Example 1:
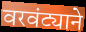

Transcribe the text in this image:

वरवंट्याने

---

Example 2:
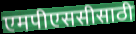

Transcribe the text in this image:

एमपीएससीसाठी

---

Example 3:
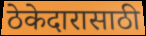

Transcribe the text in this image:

ठेकेदारासाठी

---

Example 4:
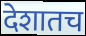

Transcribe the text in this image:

देशातच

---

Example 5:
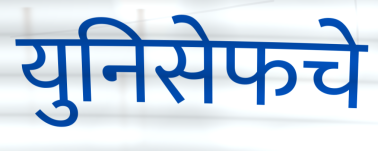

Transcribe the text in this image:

युनिसेफचे